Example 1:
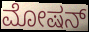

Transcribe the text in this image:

ಮೋಷನ್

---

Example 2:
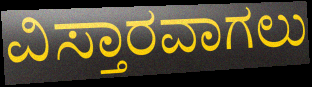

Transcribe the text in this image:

ವಿಸ್ತಾರವಾಗಲು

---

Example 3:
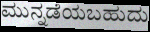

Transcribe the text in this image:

ಮುನ್ನಡೆಯಬಹುದು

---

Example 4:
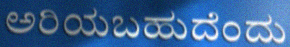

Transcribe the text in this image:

ಅರಿಯಬಹುದೆಂದು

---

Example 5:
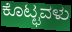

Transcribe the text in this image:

ಕೊಟ್ಟವಳು